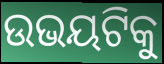
ଉଭୟଟିକୁ